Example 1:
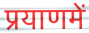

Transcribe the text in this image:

प्रयाणमें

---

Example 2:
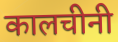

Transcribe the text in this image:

कालचीनी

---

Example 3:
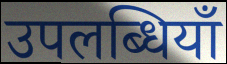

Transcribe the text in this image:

उपलब्धियाँ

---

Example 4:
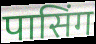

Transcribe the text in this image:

पासिंग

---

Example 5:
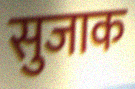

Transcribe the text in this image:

सुजाक